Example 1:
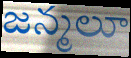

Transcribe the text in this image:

జన్మలూ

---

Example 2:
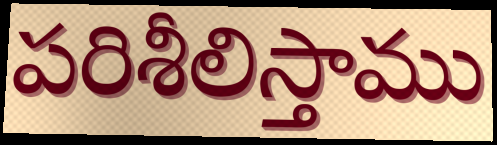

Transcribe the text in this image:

పరిశీలిస్తాము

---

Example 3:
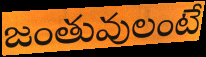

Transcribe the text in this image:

జంతువులంటే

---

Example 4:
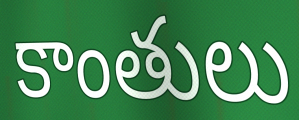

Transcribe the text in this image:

కాంతులు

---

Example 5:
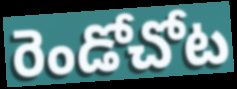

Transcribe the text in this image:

రెండోచోట